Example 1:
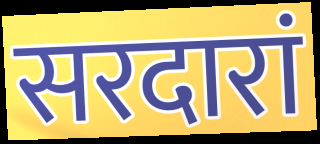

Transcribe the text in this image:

सरदारां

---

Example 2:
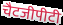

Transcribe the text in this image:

चैटजीपीटी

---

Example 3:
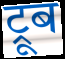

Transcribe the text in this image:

ट्रूब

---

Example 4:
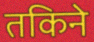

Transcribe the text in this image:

तकिने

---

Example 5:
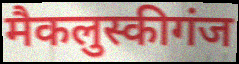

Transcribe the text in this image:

मैकलुस्कीगंज